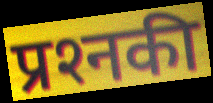
प्रश्नकी